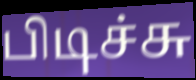
பிடிச்சு